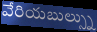
వేరియబుల్స్ను